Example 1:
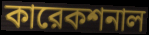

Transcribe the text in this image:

কারেকশনাল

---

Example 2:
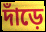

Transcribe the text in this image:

দাঁড়ে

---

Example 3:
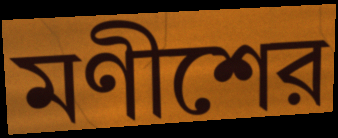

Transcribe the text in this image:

মণীশের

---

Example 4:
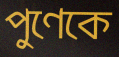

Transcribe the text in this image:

পুণেকে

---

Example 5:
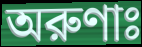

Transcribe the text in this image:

অরুণাঃ